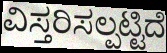
ವಿಸ್ತರಿಸಲ್ಪಟ್ಟಿದೆ